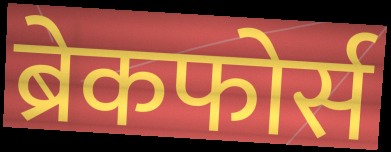
ब्रेकफोर्स